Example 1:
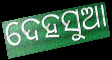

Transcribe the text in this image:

ଦେହସୁଆ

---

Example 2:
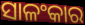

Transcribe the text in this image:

ସାଳଂକାର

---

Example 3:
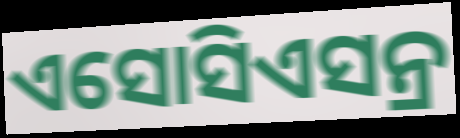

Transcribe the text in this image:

ଏସୋସିଏସନ୍ର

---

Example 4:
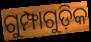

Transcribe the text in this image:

ଗୁମ୍ଫାଗୁଡ଼ିକ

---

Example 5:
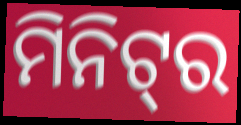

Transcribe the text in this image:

ମିନିଟ୍‌ର